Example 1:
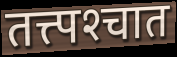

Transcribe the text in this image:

तत्त्पश्चात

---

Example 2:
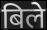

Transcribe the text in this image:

बिले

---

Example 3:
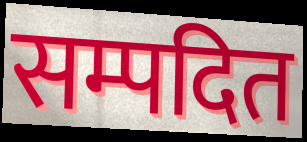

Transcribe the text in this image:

सम्पदित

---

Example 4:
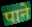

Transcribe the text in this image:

पाने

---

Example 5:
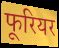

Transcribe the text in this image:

फूरियर